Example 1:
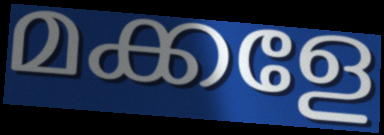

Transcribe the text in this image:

മക്കളേ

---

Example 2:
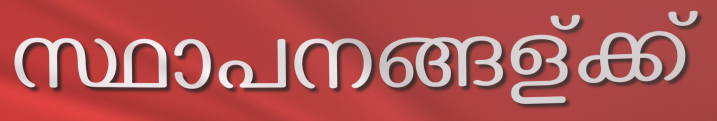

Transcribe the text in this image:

സ്ഥാപനങ്ങള്ക്ക്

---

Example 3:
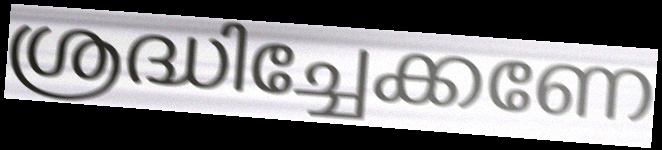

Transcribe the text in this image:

ശ്രദ്ധിച്ചേക്കണേ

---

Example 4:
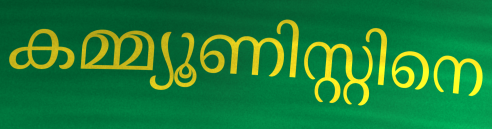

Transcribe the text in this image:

കമ്മ്യൂണിസ്റ്റിനെ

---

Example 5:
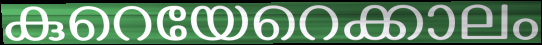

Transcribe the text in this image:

കുറെയേറെക്കാലം